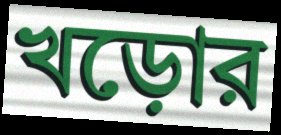
খড়োর